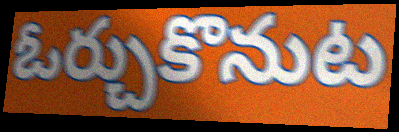
ఓర్చుకొనుట